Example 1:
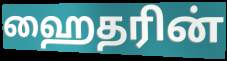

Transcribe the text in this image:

ஹைதரின்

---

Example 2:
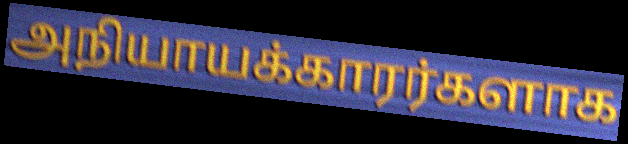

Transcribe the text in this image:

அநியாயக்காரர்களாக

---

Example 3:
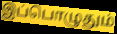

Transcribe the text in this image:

இப்பொழுதும்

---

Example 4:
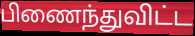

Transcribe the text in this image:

பிணைந்துவிட்ட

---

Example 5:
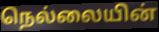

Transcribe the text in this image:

நெல்லையின்